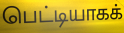
பெட்டியாகக்